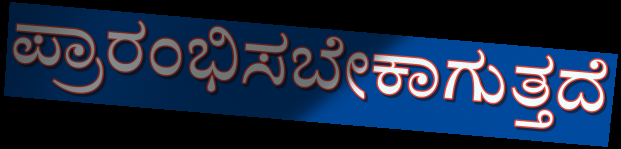
ಪ್ರಾರಂಭಿಸಬೇಕಾಗುತ್ತದೆ